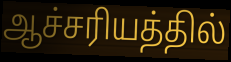
ஆச்சரியத்தில்